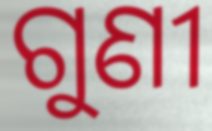
ଗୁଣୀ